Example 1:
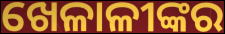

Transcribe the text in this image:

ଖେଳାଳୀଙ୍କର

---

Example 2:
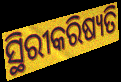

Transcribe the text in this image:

ସ୍ଥିରୀକରିଷ୍ଯତି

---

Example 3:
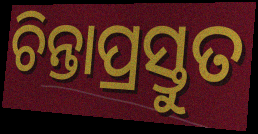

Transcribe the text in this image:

ଚିନ୍ତାପ୍ରସ୍ତୁତ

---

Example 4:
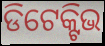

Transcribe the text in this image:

ଡିଟେକ୍ଟିଭ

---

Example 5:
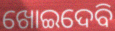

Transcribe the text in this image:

ଖୋଇଦେବି